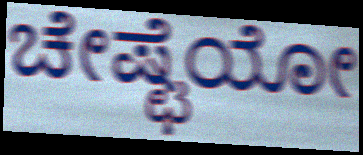
ಚೇಷ್ಟೆಯೋ